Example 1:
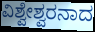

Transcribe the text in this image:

ವಿಶ್ವೇಶ್ವರನಾದ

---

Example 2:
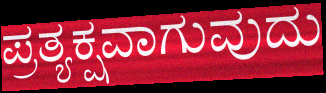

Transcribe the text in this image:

ಪ್ರತ್ಯಕ್ಷವಾಗುವುದು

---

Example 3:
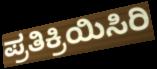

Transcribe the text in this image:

ಪ್ರತಿಕ್ರಿಯಿಸಿರಿ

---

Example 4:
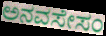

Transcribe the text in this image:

ಅನವಸೇಸಂ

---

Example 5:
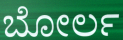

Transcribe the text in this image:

ಬೋರ್ಲ